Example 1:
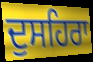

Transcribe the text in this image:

ਦੁਸਹਿਰਾ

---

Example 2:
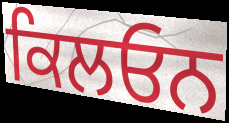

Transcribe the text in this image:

ਕਿਲਓਨ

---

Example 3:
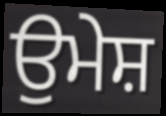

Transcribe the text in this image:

ਉਮੇਸ਼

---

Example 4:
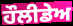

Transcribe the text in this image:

ਹੌਲੀਡੇਅ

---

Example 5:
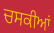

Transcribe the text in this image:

ਚਸਕੀਆਂ